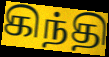
கிந்தி